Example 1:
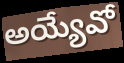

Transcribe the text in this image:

అయ్యేవో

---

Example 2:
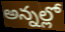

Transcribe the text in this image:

అన్నల్లో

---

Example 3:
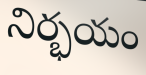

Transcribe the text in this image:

నిర్భయం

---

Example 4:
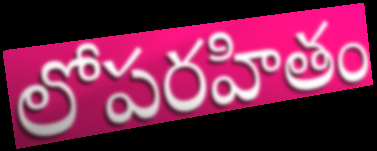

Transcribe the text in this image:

లోపరహితం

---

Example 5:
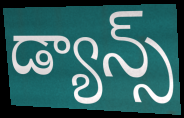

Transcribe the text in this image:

డ్యాన్స్